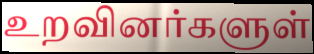
உறவினர்களுள்